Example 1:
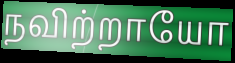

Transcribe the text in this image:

நவிற்றாயோ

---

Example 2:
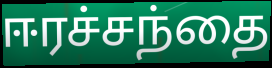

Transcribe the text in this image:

ஈரச்சந்தை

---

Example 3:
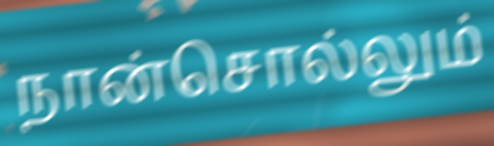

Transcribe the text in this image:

நான்சொல்லும்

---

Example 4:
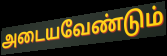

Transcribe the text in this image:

அடையவேண்டும்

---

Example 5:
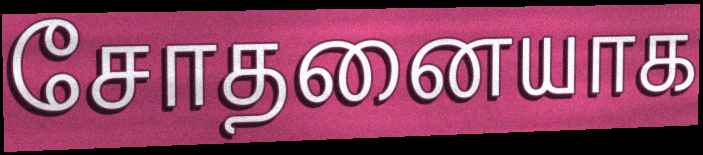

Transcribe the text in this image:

சோதனையாக